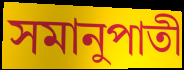
সমানুপাতী